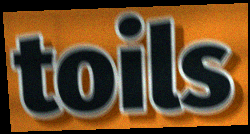
toils